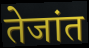
तेजांत